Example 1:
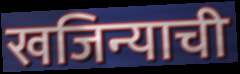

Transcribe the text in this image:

खजिन्याची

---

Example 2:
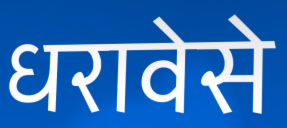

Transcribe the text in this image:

धरावेसे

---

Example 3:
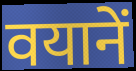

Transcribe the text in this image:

वयानें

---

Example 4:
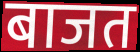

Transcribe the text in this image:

बाजत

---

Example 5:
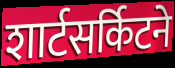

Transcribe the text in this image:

शार्टसर्किटने